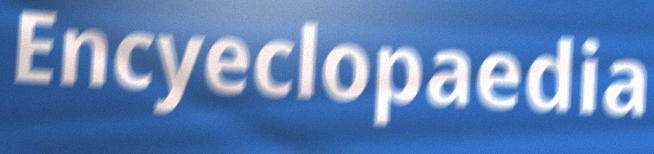
Encyeclopaedia